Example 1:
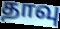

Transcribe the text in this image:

தாவு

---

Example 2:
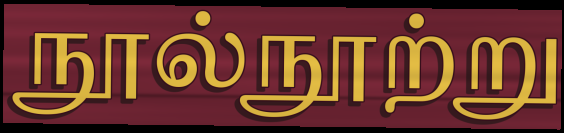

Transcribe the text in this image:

நூல்நூற்று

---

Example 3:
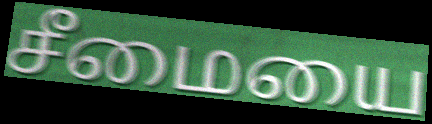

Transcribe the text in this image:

சீமையை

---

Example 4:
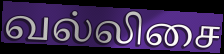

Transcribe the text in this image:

வல்லிசை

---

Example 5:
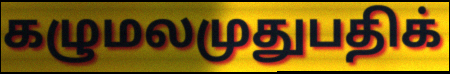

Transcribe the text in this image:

கழுமலமுதுபதிக்